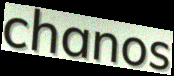
chanos